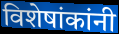
विशेषांकांनी